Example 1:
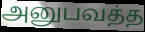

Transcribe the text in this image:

அனுபவத்த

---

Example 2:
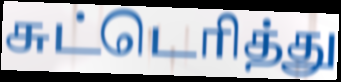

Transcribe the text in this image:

சுட்டெரித்து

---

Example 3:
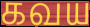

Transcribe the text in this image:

கவய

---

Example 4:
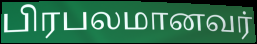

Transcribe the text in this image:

பிரபலமானவர்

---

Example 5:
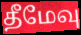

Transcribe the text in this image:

தீமேவு